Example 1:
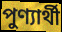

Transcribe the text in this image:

পুণ্যার্থী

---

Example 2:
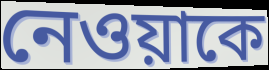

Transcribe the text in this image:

নেওয়াকে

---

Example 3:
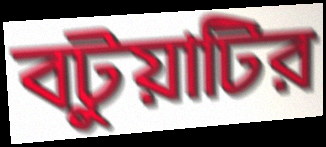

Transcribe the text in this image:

বটুয়াটির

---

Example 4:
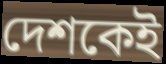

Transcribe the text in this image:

দেশকেই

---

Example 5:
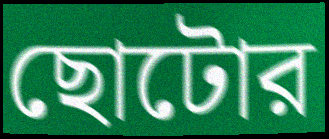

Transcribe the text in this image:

ছোটোর